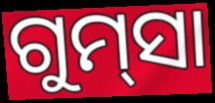
ଗୁମ୍‌ସା